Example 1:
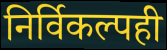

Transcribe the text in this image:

निर्विकल्पही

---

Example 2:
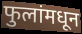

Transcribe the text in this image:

फुलांमधून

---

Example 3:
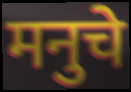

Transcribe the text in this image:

मनुचे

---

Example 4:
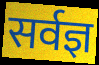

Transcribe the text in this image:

सर्वज्ञ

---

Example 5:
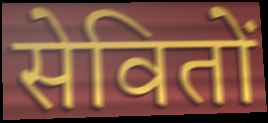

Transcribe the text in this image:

सेवितों